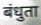
बंधुता